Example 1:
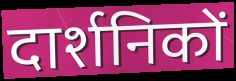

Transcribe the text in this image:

दार्शनिकों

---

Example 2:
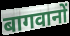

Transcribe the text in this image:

बागवानों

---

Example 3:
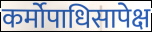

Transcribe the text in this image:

कर्मोपाधिसापेक्ष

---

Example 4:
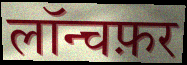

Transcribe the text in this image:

लॉन्चफ़र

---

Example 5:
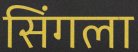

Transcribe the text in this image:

सिंगला